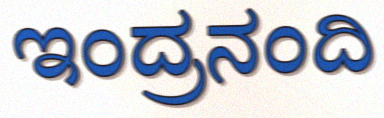
ಇಂದ್ರನಂದಿ